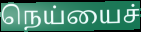
நெய்யைச்